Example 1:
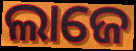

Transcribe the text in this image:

ଲାଜେ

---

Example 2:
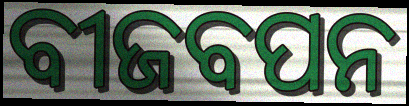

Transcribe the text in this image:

ବୀଜବପନ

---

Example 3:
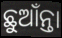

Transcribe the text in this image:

ଛୁଆଁନ୍ତା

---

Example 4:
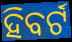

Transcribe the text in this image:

ହିବର୍ଟ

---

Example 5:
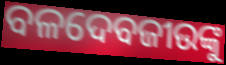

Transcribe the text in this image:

ବଳଦେବଜୀଉଙ୍କୁ